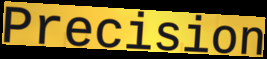
Precision